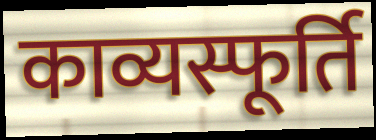
काव्यस्फूर्ति